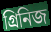
গ্রিনিজ